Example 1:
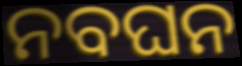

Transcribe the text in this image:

ନବଘନ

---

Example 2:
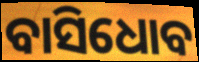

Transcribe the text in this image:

ବାସିଧୋବ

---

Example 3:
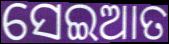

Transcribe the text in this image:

ସେଇଆତ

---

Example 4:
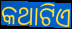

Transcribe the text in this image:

କଥାଟିଏ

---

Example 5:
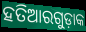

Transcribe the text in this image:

ହତିଆରଗୁଡ଼ାକ